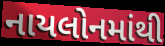
નાયલોનમાંથી